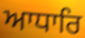
ਆਧਾਰਿ